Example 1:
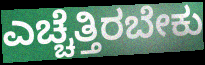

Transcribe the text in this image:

ಎಚ್ಚೆತ್ತಿರಬೇಕು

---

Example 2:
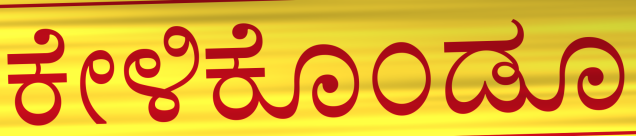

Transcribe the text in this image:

ಕೇಳಿಕೊಂಡೂ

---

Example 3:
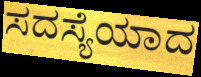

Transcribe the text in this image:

ಸದಸ್ಯೆಯಾದ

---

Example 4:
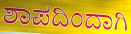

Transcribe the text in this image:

ಶಾಪದಿಂದಾಗಿ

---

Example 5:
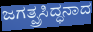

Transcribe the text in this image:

ಜಗತ್ಪ್ರಸಿದ್ಧನಾದ